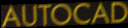
AUTOCAD